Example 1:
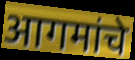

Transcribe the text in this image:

आगमांचे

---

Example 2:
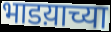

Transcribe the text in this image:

भाडय़ाच्या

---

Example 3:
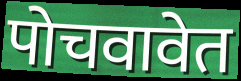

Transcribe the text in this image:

पोचवावेत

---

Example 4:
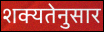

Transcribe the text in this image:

शक्यतेनुसार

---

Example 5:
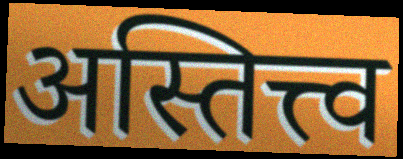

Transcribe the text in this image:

अस्तित्त्व